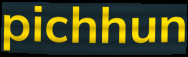
pichhun